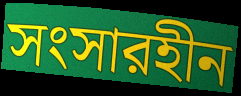
সংসারহীন